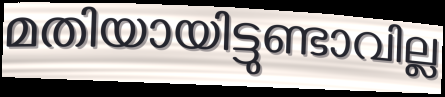
മതിയായിട്ടുണ്ടാവില്ല